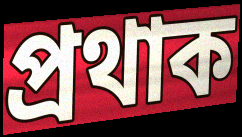
প্ৰথাক